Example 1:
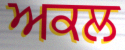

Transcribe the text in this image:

ਅਕਲ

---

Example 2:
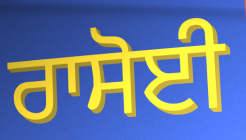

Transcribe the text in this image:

ਰਾਸੋਈ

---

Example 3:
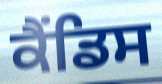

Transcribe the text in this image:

ਕੈਂਡਿਸ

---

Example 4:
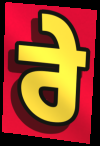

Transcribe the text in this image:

ਰੇ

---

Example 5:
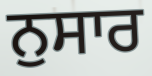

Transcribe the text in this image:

ਨੁਸਾਰ